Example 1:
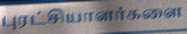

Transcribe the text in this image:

புரட்சியாளர்களை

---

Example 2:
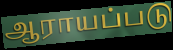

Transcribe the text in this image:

ஆராயப்படு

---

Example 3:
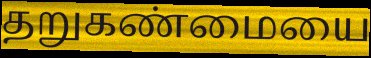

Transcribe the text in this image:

தறுகண்மையை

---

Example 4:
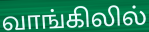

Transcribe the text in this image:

வாங்கிலில்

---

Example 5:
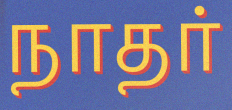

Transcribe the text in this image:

நாதர்